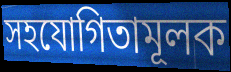
সহযোগিতামূলক